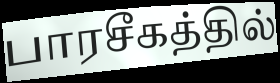
பாரசீகத்தில்